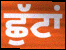
ਛੁੱਟਾਂ